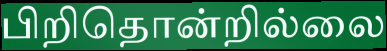
பிறிதொன்றில்லை